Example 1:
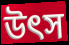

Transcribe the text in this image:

উৎস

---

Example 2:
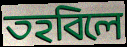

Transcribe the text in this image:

তহবিলে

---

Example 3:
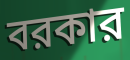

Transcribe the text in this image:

বরকার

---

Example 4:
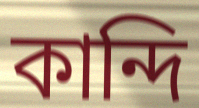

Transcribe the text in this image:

কান্দি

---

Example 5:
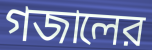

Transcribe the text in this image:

গজালের